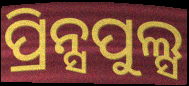
ପ୍ରିନ୍ସପୁଲ୍ସ